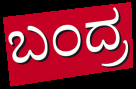
ಬಂದ್ರ